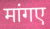
मांगए